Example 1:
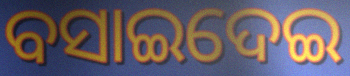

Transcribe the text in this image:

ବସାଇଦେଇ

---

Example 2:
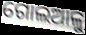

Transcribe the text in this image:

ଗୋଲଆଳୁ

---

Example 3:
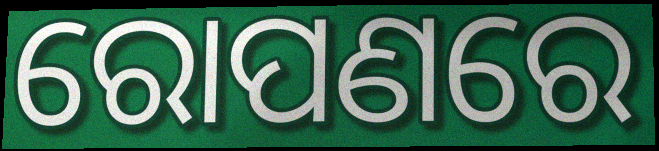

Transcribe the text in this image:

ରୋପଣରେ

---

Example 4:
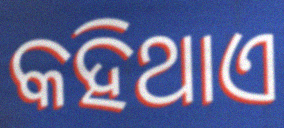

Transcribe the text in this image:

କହିଥାଏ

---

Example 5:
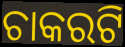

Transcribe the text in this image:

ଚାକରଟି